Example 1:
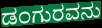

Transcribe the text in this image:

ಡಂಗುರವನು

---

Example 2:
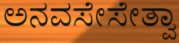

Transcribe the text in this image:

ಅನವಸೇಸೇತ್ವಾ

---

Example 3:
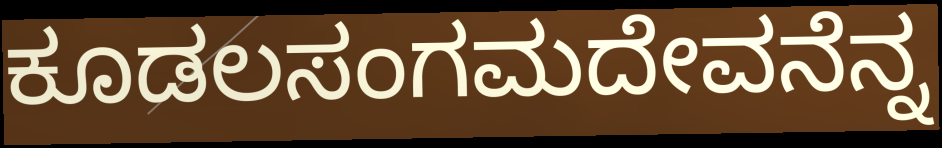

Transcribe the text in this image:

ಕೂಡಲಸಂಗಮದೇವನೆನ್ನ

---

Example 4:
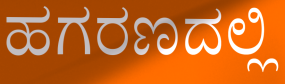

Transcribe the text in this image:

ಹಗರಣದಲ್ಲಿ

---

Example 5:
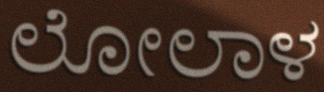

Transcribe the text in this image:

ಲೋಲಾಳ